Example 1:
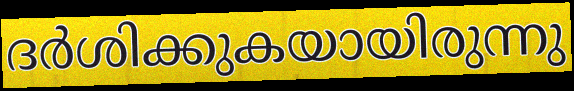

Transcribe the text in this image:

ദർശിക്കുകയായിരുന്നു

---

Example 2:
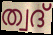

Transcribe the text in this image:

ത്വദ്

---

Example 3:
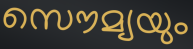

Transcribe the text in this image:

സൌമ്യയും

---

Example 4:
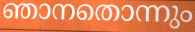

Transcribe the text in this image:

ഞാനതൊന്നും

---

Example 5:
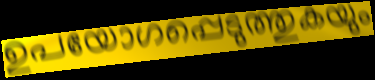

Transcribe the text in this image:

ഉപയോഗപ്പെടുത്തുകയും